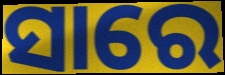
ସାରେ